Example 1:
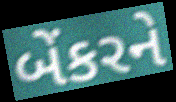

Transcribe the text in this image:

બેંકરને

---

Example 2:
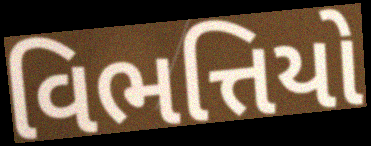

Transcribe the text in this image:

વિભત્તિયો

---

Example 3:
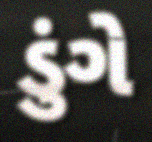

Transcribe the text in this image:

ડુંગે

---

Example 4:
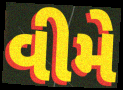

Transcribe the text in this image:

વીમે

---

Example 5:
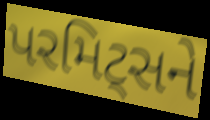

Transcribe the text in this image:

પરમિટ્સને